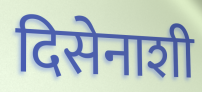
दिसेनाशी